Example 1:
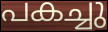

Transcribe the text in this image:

പകച്ചു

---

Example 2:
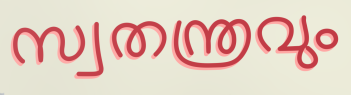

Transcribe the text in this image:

സ്വതന്ത്രവും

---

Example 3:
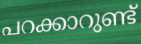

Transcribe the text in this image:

പറക്കാറുണ്ട്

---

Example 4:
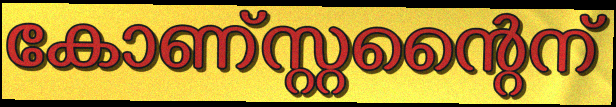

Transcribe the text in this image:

കോണ്സ്റ്റന്റൈന്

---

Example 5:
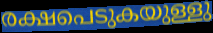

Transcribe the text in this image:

രക്ഷപെടുകയുള്ളു